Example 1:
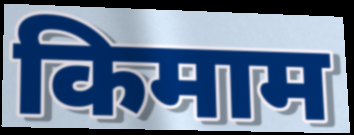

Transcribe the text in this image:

किमाम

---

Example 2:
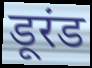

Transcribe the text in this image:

डूरंड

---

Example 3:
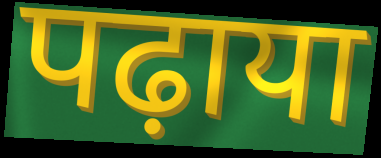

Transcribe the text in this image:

पढ़ाया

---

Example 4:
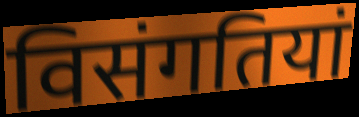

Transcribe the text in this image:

विसंगतियां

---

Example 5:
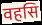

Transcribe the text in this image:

वहसि